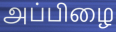
அப்பிழை